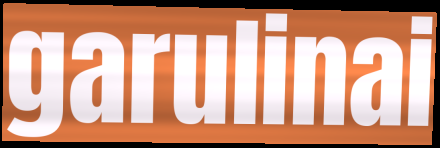
garulinai